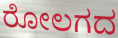
ರೋಲಗದ